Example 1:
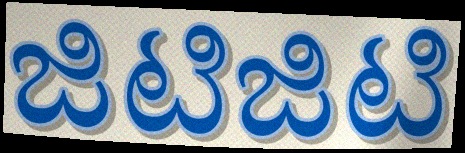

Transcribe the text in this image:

ಜಿಟಿಜಿಟಿ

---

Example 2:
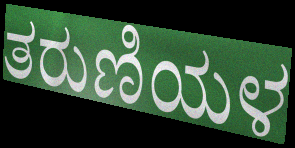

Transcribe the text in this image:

ತರುಣಿಯಳ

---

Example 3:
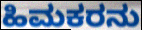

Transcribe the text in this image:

ಹಿಮಕರನು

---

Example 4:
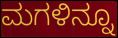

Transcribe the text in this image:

ಮಗಳಿನ್ನೂ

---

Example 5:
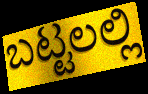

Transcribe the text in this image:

ಬಟ್ಟಲಲ್ಲಿ